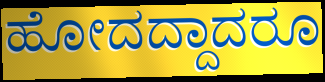
ಹೋದದ್ದಾದರೂ